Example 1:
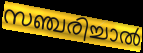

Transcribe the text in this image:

സഞ്ചരിച്ചാൽ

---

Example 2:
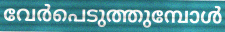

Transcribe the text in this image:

വേർപെടുത്തുമ്പോൾ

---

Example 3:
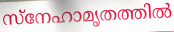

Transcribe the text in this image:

സ്നേഹാമൃതത്തിൽ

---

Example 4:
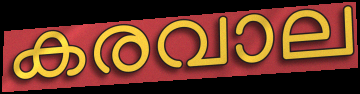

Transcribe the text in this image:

കരവാല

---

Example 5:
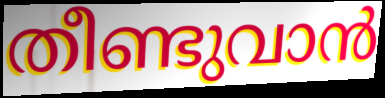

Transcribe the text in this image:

തീണ്ടുവാൻ